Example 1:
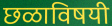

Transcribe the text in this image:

छळाविषयी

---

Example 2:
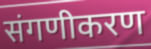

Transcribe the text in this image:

संगणीकरण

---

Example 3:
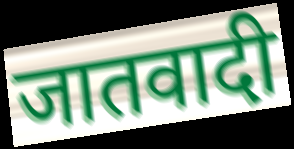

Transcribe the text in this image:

जातवादी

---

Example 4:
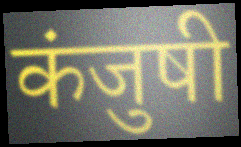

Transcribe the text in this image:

कंजुषी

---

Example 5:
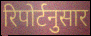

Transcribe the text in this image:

रिपोर्टनुसार